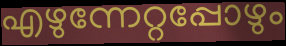
എഴുന്നേറ്റപ്പോഴും